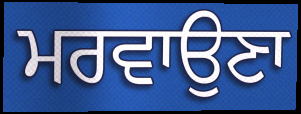
ਮਰਵਾਉਣਾ